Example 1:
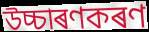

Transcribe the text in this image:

উচ্চাৰণকৰণ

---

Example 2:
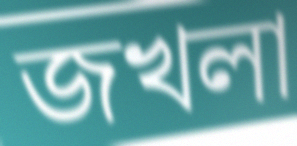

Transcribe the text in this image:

জখলা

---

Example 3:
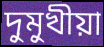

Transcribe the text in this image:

দুমুখীয়া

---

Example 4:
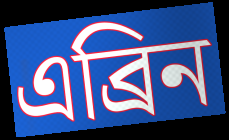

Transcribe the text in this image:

এব্ৰিন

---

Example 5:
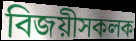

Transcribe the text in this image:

বিজয়ীসকলক